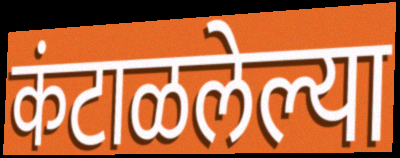
कंटाळलेल्या